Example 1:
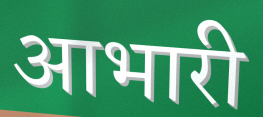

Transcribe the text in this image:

आभारी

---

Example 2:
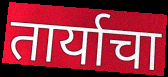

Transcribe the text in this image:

तार्याचा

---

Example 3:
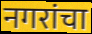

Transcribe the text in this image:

नगरांचा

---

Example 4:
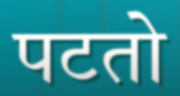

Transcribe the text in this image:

पटतो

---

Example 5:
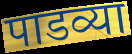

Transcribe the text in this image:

पाडव्या